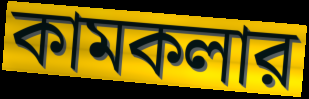
কামকলার